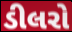
ડીલરો